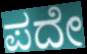
ಪದೇ